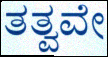
ತತ್ವವೇ